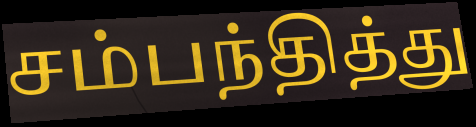
சம்பந்தித்து